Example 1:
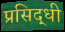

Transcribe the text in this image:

प्रसिद्धी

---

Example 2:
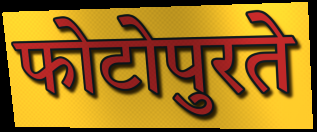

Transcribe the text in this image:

फोटोपुरते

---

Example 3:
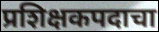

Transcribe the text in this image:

प्रशिक्षकपदाचा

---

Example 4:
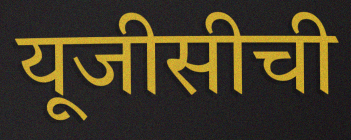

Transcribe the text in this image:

यूजीसीची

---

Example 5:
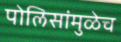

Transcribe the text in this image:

पोलिसांमुळेच